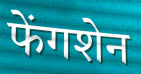
फेंगशेन